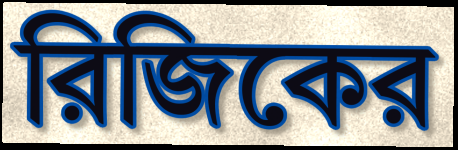
রিজিকের